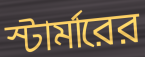
স্টার্মারের